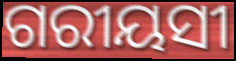
ଗରୀୟସୀ